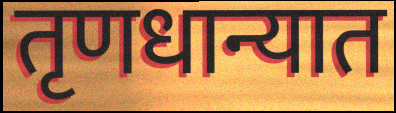
तृणधान्यात